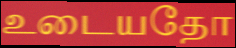
உடையதோ